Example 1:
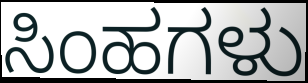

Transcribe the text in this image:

ಸಿಂಹಗಳು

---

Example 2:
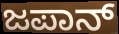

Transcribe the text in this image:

ಜಪಾನ್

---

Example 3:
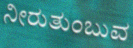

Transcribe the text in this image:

ನೀರುತುಂಬುವ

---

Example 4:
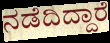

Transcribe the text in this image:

ನಡೆದಿದ್ದಾರೆ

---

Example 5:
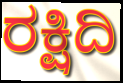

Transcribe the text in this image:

ರಕ್ಷಿದಿ